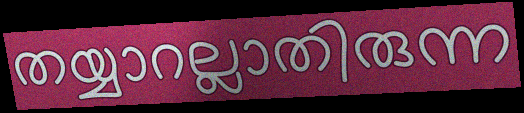
തയ്യാറല്ലാതിരുന്ന